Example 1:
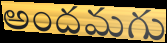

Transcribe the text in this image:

అందమగు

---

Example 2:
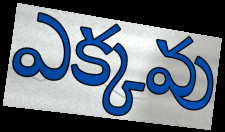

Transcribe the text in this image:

ఎక్కవు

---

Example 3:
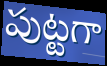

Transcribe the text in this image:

పుట్టగా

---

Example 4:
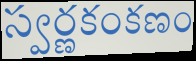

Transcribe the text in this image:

స్వర్ణకంకణం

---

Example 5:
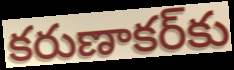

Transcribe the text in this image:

కరుణాకర్‌కు